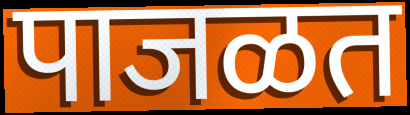
पाजळत